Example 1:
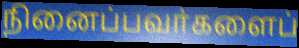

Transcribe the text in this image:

நினைப்பவர்களைப்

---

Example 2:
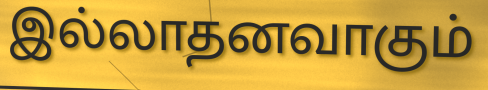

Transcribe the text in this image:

இல்லாதனவாகும்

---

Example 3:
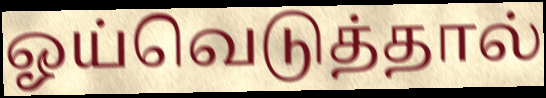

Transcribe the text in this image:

ஓய்வெடுத்தால்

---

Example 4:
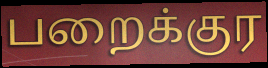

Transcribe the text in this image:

பறைக்குர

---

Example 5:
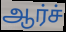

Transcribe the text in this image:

ஆர்ச்